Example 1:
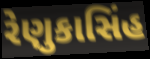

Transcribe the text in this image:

રેણુકાસિંહ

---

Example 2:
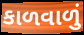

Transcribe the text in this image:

કાળવાળું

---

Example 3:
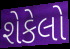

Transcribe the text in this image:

શેકેલો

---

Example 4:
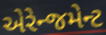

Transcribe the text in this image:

એરેન્જમેન્ટ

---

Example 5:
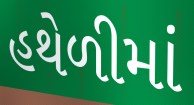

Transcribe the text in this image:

હથેળીમાં